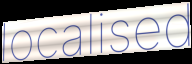
localised